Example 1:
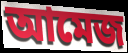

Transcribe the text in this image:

আমেজ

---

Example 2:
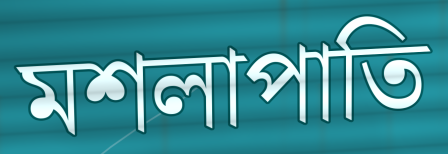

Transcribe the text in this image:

মশলাপাতি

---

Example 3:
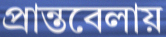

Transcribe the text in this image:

প্রান্তবেলায়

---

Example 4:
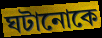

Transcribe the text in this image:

ঘটানোকে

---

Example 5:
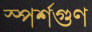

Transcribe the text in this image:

স্পর্শগুণ